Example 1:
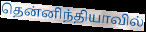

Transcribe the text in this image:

தென்னிந்தியாவில்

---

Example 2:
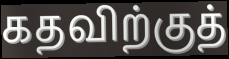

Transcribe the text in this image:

கதவிற்குத்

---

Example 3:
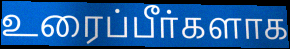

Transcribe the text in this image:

உரைப்பீர்களாக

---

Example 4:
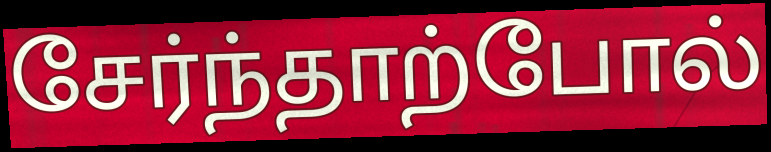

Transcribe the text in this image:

சேர்ந்தாற்போல்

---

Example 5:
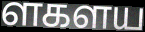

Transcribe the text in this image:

ளகளய